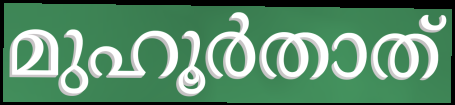
മുഹൂർതാത്